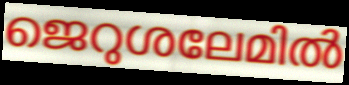
ജെറുശലേമിൽ